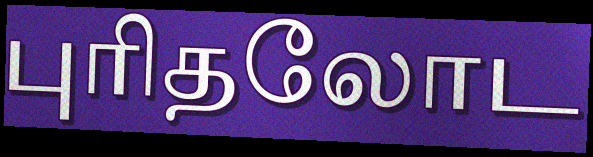
புரிதலோட